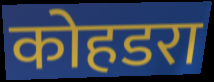
कोहडरा